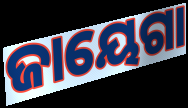
ଜାୟେଗା